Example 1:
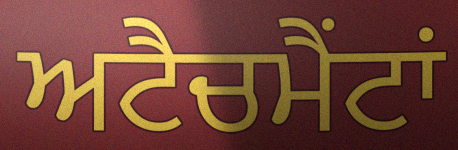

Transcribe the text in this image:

ਅਟੈਚਮੈਂਟਾਂ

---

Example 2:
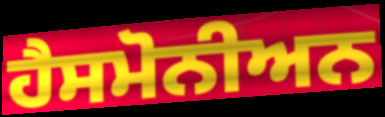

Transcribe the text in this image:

ਹੈਸਮੋਨੀਅਨ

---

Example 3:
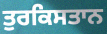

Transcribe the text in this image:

ਤੁਰਕਿਸਤਾਨ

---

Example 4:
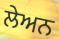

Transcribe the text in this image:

ਲੇਅਨ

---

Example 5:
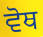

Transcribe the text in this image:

ਵੋਥ